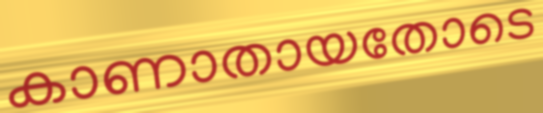
കാണാതായതോടെ